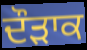
ਦੌੜਾਕ